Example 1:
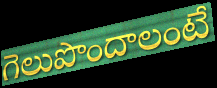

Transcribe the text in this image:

గెలుపొందాలంటే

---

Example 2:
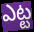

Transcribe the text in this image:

ఎట్ట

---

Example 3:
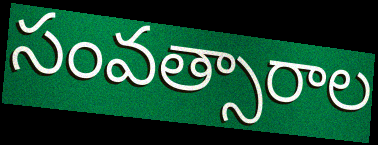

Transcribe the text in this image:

సంవత్సారాల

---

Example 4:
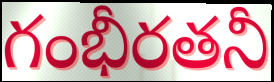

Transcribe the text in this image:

గంభీరతనీ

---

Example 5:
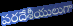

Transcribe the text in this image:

పరదేశీయులుగా